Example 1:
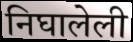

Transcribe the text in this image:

निघालेली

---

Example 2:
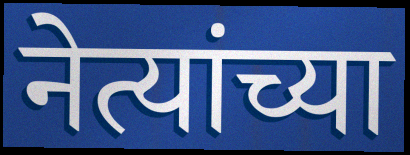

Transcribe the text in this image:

नेत्यांच्या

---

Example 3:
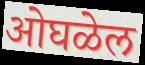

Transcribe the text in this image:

ओघळेल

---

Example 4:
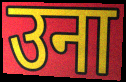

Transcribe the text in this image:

उना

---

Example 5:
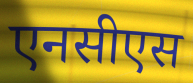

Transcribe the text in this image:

एनसीएस